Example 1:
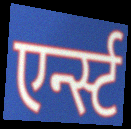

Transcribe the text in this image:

एर्न्स्ट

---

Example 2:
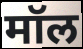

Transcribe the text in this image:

मॉल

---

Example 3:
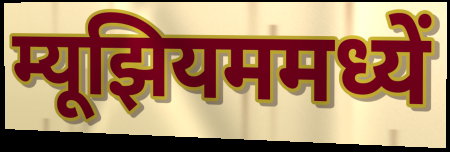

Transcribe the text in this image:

म्यूझियममध्यें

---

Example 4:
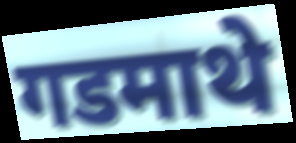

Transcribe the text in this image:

गडमाथे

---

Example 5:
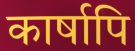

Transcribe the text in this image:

कार्षापि